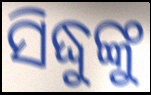
ସିଦ୍ଧୁଙ୍କୁ